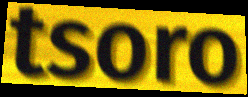
tsoro